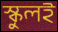
স্কুলই